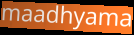
maadhyama